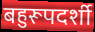
बहुरूपदर्शी